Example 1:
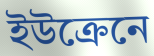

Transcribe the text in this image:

ইউক্রেনে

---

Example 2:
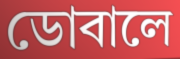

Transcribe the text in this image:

ডোবালে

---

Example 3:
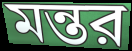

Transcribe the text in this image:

মন্তর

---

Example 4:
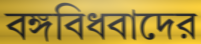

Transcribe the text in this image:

বঙ্গবিধবাদের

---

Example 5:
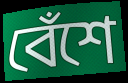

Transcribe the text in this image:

বেঁশে